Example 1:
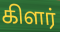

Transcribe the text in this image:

கிளர்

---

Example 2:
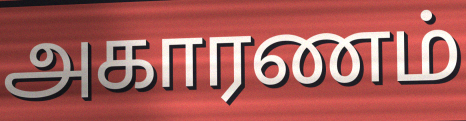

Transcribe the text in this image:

அகாரணம்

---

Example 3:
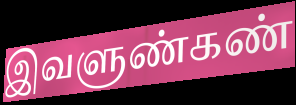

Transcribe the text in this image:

இவளுண்கண்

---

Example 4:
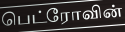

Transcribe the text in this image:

பெட்ரோவின்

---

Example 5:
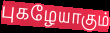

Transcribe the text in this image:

புகழேயாகும்